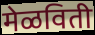
मेळविती